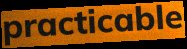
practicable